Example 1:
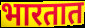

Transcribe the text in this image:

भारतात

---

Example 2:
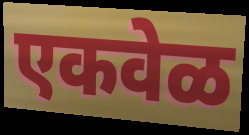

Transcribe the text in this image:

एकवेळ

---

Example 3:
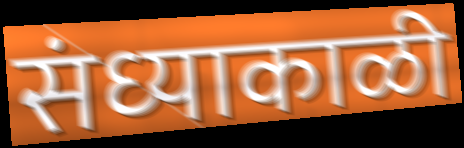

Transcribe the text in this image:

संध्‍याकाळी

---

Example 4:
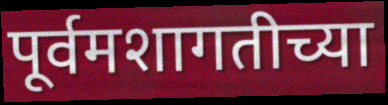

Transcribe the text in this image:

पूर्वमशागतीच्या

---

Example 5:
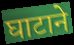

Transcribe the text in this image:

घाटाने